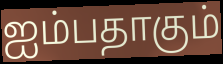
ஐம்பதாகும்